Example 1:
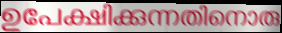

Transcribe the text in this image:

ഉപേക്ഷിക്കുന്നതിനൊരു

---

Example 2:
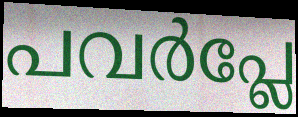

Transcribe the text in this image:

പവർപ്ലേ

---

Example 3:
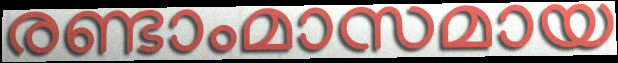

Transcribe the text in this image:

രണ്ടാംമാസമായ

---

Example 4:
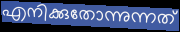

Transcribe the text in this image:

എനിക്കുതോന്നുന്നത്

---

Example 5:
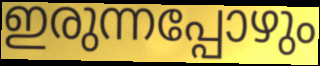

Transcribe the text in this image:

ഇരുന്നപ്പോഴും